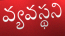
వ్యవస్థని